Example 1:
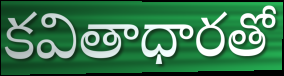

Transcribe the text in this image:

కవితాధారతో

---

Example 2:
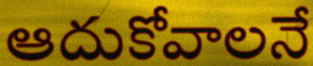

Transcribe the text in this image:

ఆదుకోవాలనే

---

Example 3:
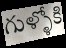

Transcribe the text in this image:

గుళ్ళోకి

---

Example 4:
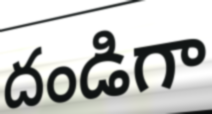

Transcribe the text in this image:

దండిగా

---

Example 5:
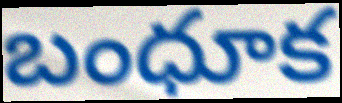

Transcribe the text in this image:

బంధూక